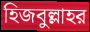
হিজবুল্লাহর